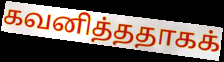
கவனித்ததாகக்